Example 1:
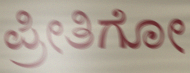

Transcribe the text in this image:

ಪ್ರೀತಿಗೋ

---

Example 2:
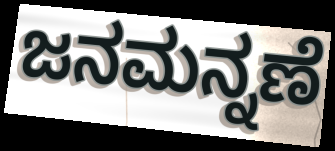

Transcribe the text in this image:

ಜನಮನ್ನಣೆ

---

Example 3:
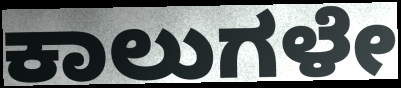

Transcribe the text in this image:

ಕಾಲುಗಳೇ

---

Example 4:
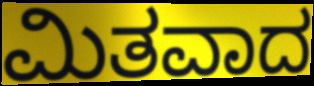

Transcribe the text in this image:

ಮಿತವಾದ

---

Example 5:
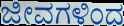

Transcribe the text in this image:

ಜೀವಗಳಿಂದ